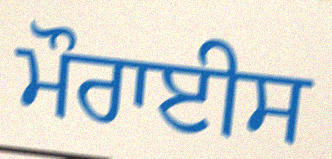
ਮੌਰਾਈਸ